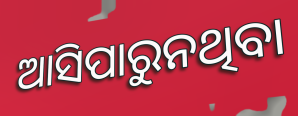
ଆସିପାରୁନଥିବା